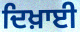
ਦਿਖ਼ਾਈ